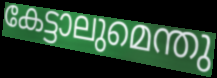
കേട്ടാലുമെന്തു